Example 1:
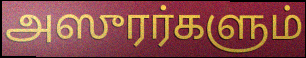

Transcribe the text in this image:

அஸுரர்களும்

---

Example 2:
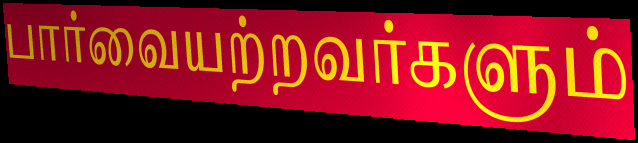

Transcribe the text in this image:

பார்வையற்றவர்களும்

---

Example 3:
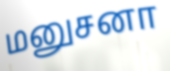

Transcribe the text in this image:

மனுசனா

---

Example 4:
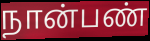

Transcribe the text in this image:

நான்பண்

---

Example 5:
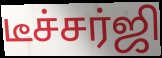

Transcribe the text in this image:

டீச்சர்ஜி